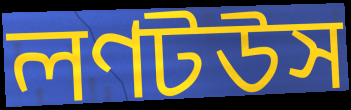
লণটউস